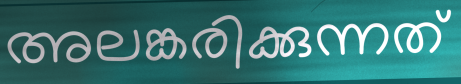
അലങ്കരിക്കുന്നത്